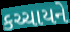
કચ્ચાયને